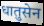
धातुसेन